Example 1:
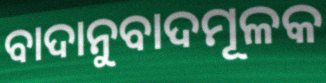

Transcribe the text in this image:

ବାଦାନୁବାଦମୂଳକ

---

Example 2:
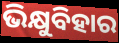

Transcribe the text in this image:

ଭିକ୍ଷୁବିହାର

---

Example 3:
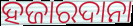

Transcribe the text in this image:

ହଜାରଦାନା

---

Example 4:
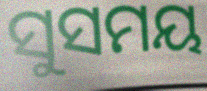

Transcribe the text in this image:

ସୁସମୟ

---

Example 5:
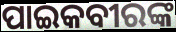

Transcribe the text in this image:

ପାଇକବୀରଙ୍କ